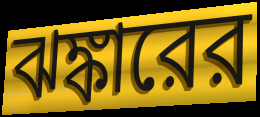
ঝঙ্কারের